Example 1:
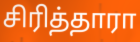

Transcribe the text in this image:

சிரித்தாரா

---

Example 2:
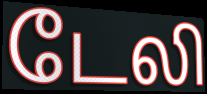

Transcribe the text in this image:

டேலி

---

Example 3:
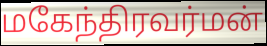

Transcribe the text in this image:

மகேந்திரவர்மன்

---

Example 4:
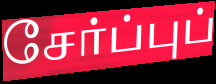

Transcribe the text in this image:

சேர்ப்புப்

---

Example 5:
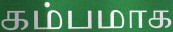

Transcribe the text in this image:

கம்பமாக